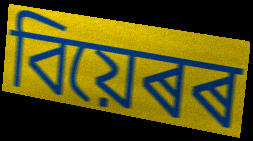
বিয়েৰৰ